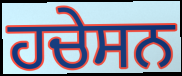
ਹਚੇਸਨ